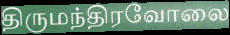
திருமந்திரவோலை